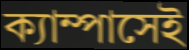
ক্যাম্পাসেই